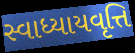
સ્વાધ્યાયવૃત્તિ